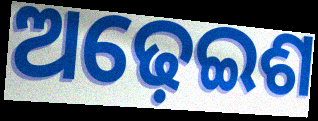
ଅଢ଼େଇଶ